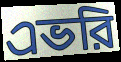
এভরি